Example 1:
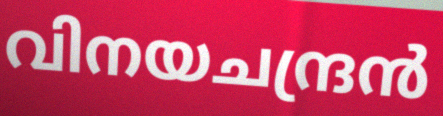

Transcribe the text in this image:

വിനയചന്ദ്രൻ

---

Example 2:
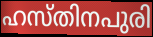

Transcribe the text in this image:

ഹസ്തിനപുരി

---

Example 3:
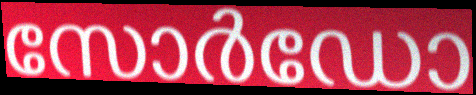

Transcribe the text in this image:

സോർഡോ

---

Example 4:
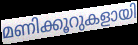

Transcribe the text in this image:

മണിക്കൂറുകളായി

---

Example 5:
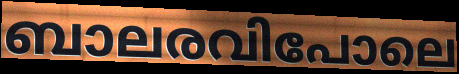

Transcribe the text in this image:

ബാലരവിപോലെ